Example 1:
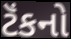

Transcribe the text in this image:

ટૅંકનો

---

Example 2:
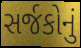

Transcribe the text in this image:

સર્જકોનું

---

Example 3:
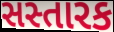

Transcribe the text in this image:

સસ્તારક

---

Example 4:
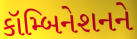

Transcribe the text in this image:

કૉમ્બિનેશનને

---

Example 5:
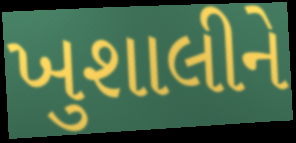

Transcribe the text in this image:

ખુશાલીને